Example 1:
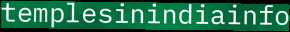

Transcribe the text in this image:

templesinindiainfo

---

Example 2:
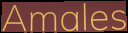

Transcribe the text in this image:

Amales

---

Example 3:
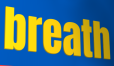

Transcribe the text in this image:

breath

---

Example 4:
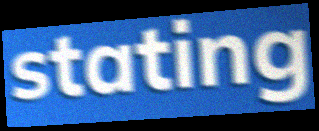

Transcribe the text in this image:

stating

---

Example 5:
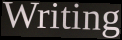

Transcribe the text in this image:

Writing